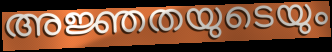
അജ്ഞതയുടെയും